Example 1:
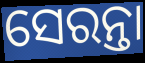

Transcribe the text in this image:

ସେରନ୍ତା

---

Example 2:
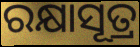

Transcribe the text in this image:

ରକ୍ଷାସୂତ୍ର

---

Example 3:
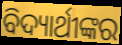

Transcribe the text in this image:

ବିଦ୍ୟାର୍ଥୀଙ୍କର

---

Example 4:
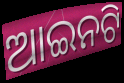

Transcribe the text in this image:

ଆଇନଟି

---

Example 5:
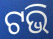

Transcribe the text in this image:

ଟଭି